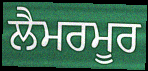
ਲੈਮਰਮੂਰ